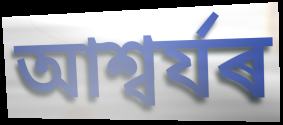
আশ্বৰ্যৰ